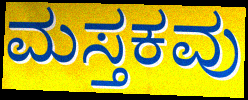
ಮಸ್ತಕವು